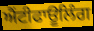
ਐਂਟੀਫਾਊਲਿੰਗ